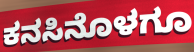
ಕನಸಿನೊಳಗೂ